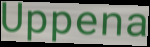
Uppena